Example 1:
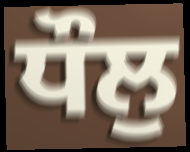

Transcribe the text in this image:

ਧੌਲੁ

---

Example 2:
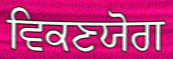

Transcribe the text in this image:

ਵਿਕਣਯੋਗ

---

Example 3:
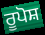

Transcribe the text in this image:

ਰੂਪੋਸ਼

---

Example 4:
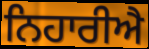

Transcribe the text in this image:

ਨਿਹਾਰੀਐ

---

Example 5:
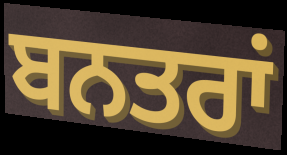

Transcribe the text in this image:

ਬਨਤਰਾਂ